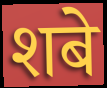
शबे